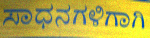
ಸಾಧನಗಳಿಗಾಗಿ